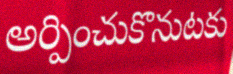
అర్పించుకొనుటకు